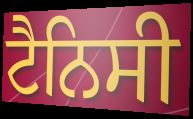
ਟੈਨਿਸੀ